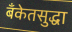
बँकेतसुद्धा